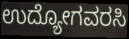
ಉದ್ಯೋಗವರಸಿ